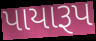
પાયારૂપ